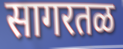
सागरतळ